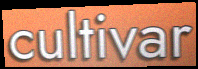
cultivar